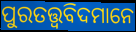
ପୁରତତ୍ତ୍ୱବିଦମାନେ